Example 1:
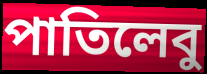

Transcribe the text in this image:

পাতিলেবু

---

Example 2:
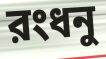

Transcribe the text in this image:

রংধনু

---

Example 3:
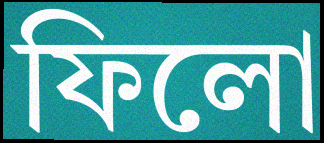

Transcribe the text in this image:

ফিলো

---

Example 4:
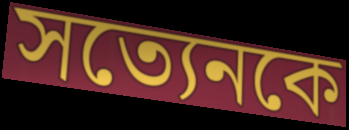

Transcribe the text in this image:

সত্যেনকে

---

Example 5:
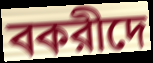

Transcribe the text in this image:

বকরীদে